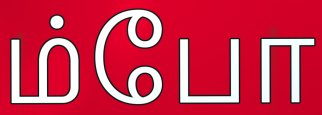
ம்போ